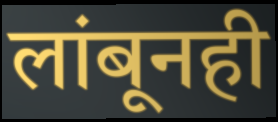
लांबूनही